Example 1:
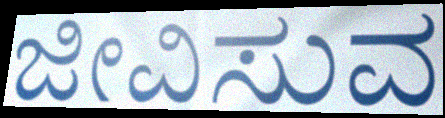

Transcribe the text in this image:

ಜೀವಿಸುವ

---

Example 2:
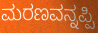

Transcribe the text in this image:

ಮರಣವನ್ನಪ್ಪಿ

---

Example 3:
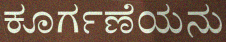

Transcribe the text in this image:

ಕೂರ್ಗಣೆಯನು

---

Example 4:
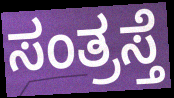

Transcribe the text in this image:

ಸಂತ್ರಸ್ತೆ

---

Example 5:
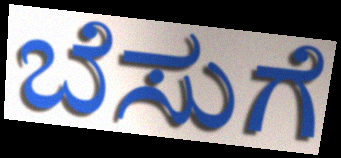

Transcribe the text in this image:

ಬೆಸುಗೆ